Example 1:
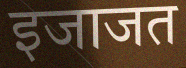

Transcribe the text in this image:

इजाजत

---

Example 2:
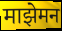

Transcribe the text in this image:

माझेमन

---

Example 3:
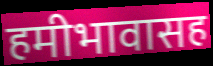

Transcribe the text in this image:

हमीभावासह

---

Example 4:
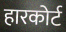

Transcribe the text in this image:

हारकोर्ट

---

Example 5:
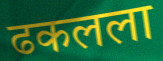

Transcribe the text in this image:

ढकलला